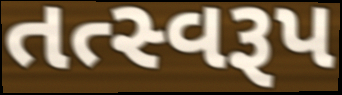
તત્સ્વરૂપ